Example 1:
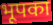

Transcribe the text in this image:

भूपका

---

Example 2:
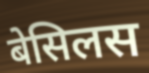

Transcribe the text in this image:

बेसिलस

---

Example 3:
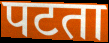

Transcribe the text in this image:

पटता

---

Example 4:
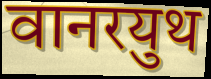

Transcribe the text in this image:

वानरयुथ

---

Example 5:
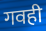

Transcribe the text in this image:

गवही